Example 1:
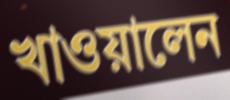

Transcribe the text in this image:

খাওয়ালেন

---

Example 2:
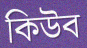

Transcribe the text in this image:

কিউব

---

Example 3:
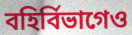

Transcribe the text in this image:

বহির্বিভাগেও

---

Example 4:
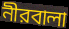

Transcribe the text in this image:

নীরবালা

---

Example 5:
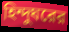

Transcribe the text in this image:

হিন্দুঘরের